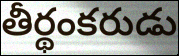
తీర్థంకరుడు